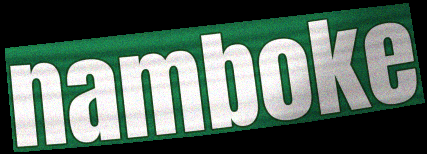
namboke